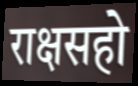
राक्षसहो